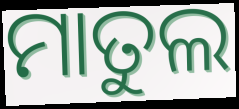
ମାତୁଲ